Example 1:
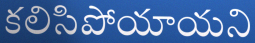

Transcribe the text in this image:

కలిసిపోయాయని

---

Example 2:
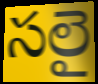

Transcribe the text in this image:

సలై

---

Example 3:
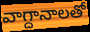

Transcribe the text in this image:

వాగ్దానాలతో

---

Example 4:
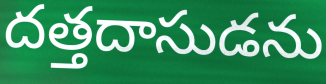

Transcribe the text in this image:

దత్తదాసుడను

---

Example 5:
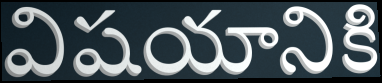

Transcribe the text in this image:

విషయానికి